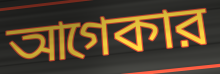
আগেকার